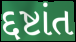
દ્દષ્ટાંત